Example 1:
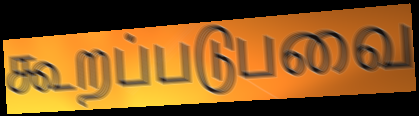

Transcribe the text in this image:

கூறப்படுபவை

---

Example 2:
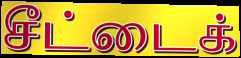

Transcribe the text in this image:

சீட்டைக்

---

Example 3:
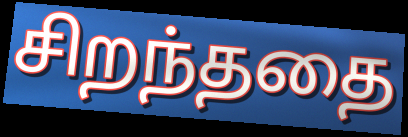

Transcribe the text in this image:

சிறந்ததை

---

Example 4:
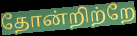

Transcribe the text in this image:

தோன்றிற்றே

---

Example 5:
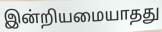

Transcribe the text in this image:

இன்றியமையாதது